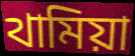
থামিয়া